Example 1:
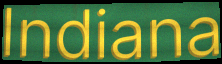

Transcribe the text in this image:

Indiana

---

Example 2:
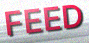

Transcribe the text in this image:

FEED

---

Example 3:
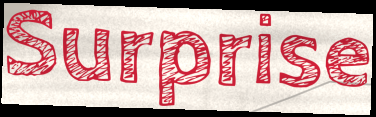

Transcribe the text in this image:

Surprise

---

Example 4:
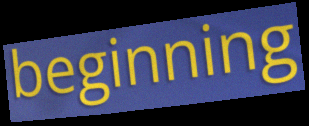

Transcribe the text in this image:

beginning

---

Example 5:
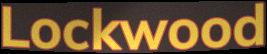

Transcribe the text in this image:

Lockwood